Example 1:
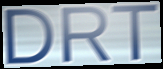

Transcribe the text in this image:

DRT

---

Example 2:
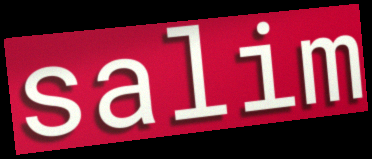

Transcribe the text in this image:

salim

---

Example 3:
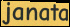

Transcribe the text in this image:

janata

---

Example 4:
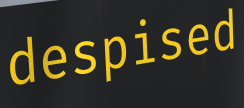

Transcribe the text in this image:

despised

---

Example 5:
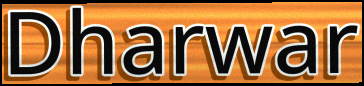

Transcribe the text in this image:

Dharwar